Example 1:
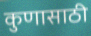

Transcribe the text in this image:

कुणासाठी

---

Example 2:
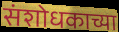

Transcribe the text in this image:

संशोधकाच्या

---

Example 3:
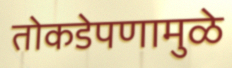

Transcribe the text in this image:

तोकडेपणामुळे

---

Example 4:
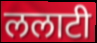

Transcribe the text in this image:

ललाटी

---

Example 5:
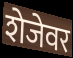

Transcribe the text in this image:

शेजेवर